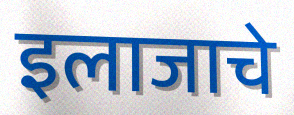
इलाजाचे